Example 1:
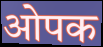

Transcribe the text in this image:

ओपक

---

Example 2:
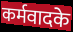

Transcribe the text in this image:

कर्मवादके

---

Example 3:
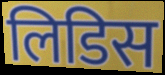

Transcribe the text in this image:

लिडिस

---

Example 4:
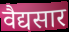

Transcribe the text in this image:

वैद्यसार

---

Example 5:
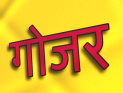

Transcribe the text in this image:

गोजर